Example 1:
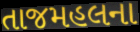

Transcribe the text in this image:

તાજમહલના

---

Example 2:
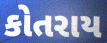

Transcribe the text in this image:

કોતરાય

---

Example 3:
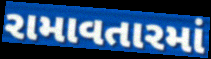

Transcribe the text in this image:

રામાવતારમાં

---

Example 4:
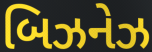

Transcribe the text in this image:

બિઝનેઝ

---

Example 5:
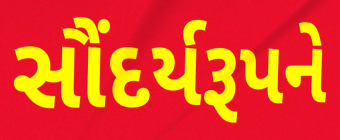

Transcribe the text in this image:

સૌંદર્યરૂપને